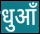
धुआँ